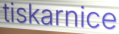
tiskarnice